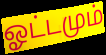
ஓட்டமும்